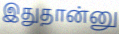
இதுதான்னு